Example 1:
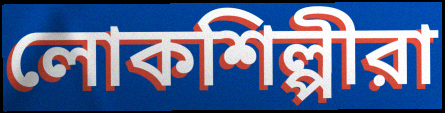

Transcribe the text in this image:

লোকশিল্পীরা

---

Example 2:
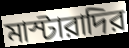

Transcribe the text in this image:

মাস্টারাদির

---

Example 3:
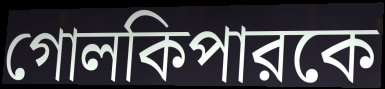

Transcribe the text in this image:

গোলকিপারকে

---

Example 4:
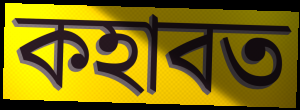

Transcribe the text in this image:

কহাবত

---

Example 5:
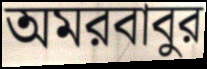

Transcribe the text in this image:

অমরবাবুর